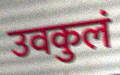
उवकुलं